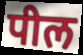
पील